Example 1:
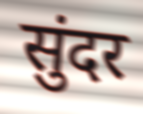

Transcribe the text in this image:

सुंदर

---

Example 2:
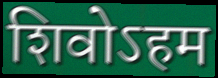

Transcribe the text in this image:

शिवोऽहम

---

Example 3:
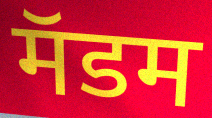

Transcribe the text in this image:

मॅडम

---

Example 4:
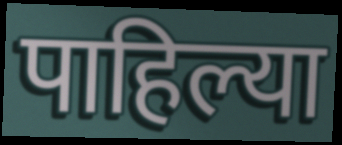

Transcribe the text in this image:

पाहिल्या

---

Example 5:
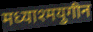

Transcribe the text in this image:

मध्याश्मयुगीन